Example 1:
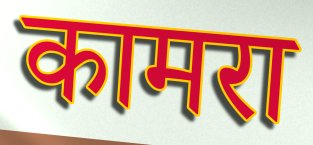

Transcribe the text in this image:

कामरा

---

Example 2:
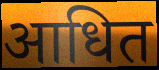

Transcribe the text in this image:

आधित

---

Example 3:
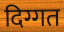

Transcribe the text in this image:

दिग्गत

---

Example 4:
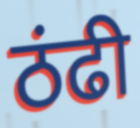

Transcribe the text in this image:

ठंढी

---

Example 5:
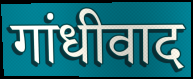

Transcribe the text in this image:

गांधीवाद